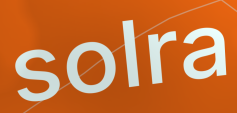
solra